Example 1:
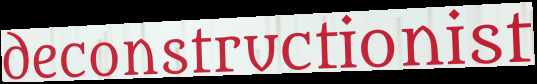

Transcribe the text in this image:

deconstructionist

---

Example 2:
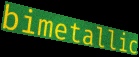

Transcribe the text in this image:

bimetallic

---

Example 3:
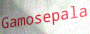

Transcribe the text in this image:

Gamosepala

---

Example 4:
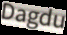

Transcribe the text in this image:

Dagdu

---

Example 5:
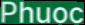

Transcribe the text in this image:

Phuoc